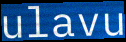
ulavu